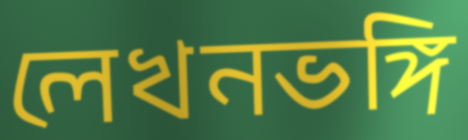
লেখনভঙ্গি